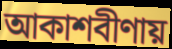
আকাশবীণায়